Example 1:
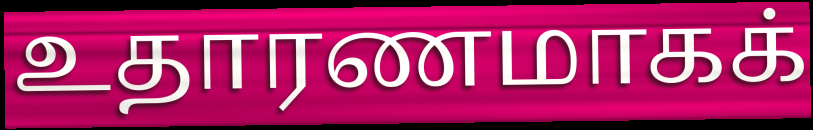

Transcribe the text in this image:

உதாரணமாகக்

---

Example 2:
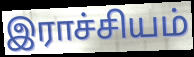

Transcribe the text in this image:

இராச்சியம்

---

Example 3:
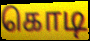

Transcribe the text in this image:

கொடி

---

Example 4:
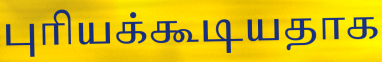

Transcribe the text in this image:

புரியக்கூடியதாக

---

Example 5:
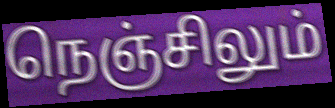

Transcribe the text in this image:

நெஞ்சிலும்